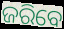
ଜରିବେ